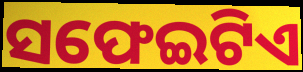
ସଫେଇଟିଏ